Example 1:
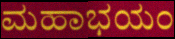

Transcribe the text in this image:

ಮಹಾಭಯಂ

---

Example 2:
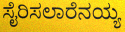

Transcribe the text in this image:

ಸೈರಿಸಲಾರೆನಯ್ಯ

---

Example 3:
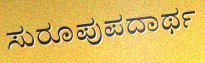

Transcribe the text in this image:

ಸುರೂಪುಪದಾರ್ಥ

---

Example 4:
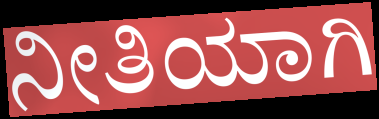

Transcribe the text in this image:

ನೀತಿಯಾಗಿ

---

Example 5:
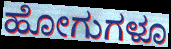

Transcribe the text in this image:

ಹೋಗುಗಳೂ